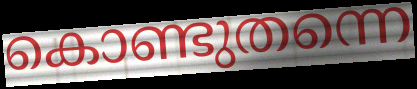
കൊണ്ടുതന്നെ